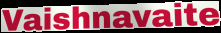
Vaishnavaite